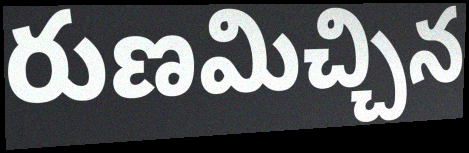
రుణమిచ్చిన